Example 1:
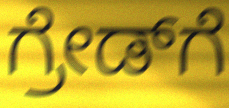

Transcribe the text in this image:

ಗ್ರೇಡ್‌ಗೆ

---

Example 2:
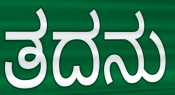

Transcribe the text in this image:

ತದನು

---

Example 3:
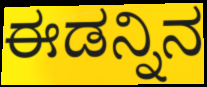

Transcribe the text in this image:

ಈಡನ್ನಿನ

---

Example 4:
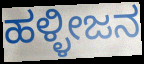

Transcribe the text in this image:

ಹಳ್ಳೀಜನ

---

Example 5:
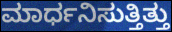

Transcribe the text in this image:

ಮಾರ್ಧನಿಸುತ್ತಿತ್ತು